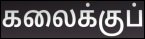
கலைக்குப்